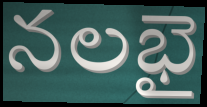
నలభై